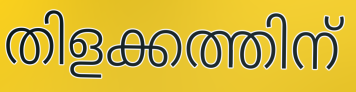
തിളക്കത്തിന്